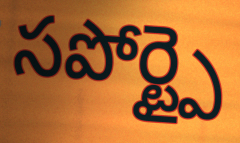
సపోర్ట్పై